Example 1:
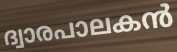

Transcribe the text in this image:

ദ്വാരപാലകൻ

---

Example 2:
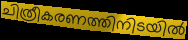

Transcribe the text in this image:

ചിത്രീകരണത്തിനിടയിൽ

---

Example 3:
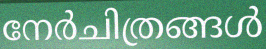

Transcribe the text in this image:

നേർചിത്രങ്ങൾ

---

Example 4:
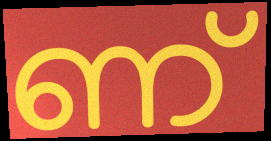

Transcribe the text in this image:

ണ്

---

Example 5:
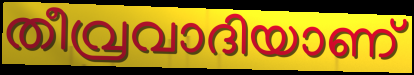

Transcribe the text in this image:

തീവ്രവാദിയാണ്